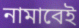
নামাবেই